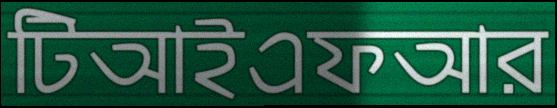
টিআইএফআর